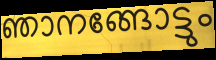
ഞാനങ്ങോട്ടും